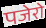
पजेरो